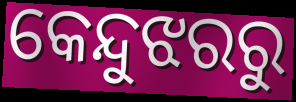
କେନ୍ଦୁଝରରୁ